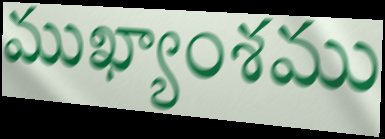
ముఖ్యాంశము